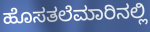
ಹೊಸತಲೆಮಾರಿನಲ್ಲಿ